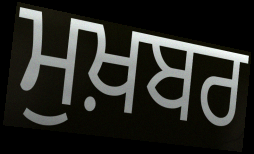
ਮੁਖ਼ਬਰ